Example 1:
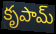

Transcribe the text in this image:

కృపామ్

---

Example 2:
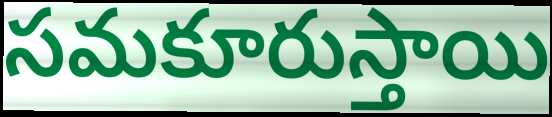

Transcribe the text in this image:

సమకూరుస్తాయి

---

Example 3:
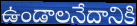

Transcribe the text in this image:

ఉండాలనేదానికి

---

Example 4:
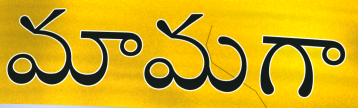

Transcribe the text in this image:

మామగా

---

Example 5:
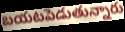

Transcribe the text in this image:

బయటపెడుతున్నారు